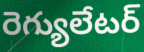
రెగ్యులేటర్